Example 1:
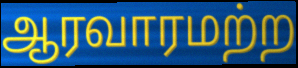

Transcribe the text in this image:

ஆரவாரமற்ற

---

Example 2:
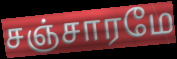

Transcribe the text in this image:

சஞ்சாரமே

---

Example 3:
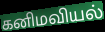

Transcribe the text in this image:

கனிமவியல்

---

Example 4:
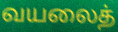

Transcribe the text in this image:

வயலைத்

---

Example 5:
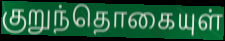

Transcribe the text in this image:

குறுந்தொகையுள்